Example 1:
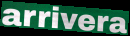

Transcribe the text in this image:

arrivera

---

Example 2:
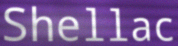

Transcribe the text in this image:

Shellac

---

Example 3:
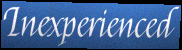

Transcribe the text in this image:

Inexperienced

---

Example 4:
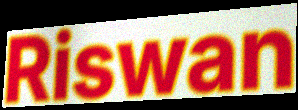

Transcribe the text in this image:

Riswan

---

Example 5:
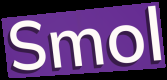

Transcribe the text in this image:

Smol